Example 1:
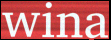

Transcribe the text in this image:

wina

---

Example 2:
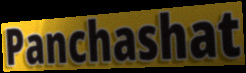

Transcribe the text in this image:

Panchashat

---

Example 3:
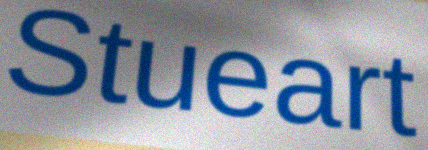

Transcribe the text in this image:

Stueart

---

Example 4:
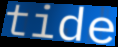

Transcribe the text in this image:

tide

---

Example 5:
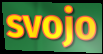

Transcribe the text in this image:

svojo